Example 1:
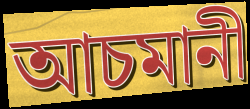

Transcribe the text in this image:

আচমানী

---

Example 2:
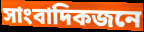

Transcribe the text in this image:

সাংবাদিকজনে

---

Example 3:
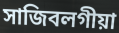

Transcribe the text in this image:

সাজিবলগীয়া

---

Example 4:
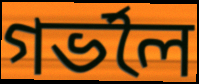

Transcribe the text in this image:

গৰ্ভলৈ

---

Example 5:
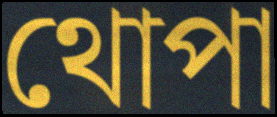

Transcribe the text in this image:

থোপা